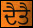
ਦੈਤੈ